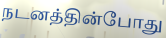
நடனத்தின்போது